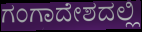
ಗಂಗಾದೇಶದಲ್ಲಿ